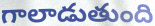
గాలాడుతుంది